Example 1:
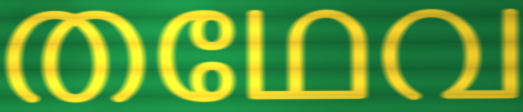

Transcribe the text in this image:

തഥേവ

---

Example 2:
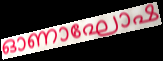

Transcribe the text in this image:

ഓണാഘോഷ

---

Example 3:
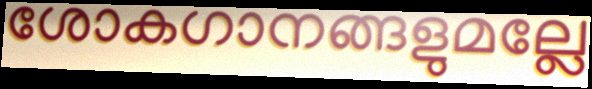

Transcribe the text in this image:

ശോകഗാനങ്ങളുമല്ലേ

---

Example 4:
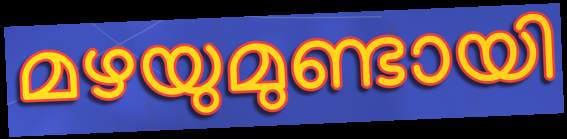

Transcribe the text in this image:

മഴയുമുണ്ടായി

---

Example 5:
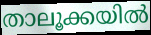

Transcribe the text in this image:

താലൂക്കയിൽ